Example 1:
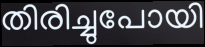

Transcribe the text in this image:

തിരിച്ചുപോയി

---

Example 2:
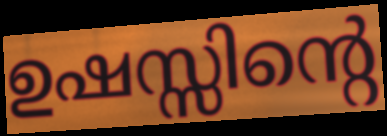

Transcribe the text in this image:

ഉഷസ്സിന്റെ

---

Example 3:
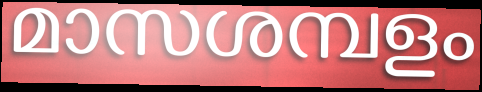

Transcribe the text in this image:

മാസശമ്പളം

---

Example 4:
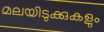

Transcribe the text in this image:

മലയിടുക്കുകളും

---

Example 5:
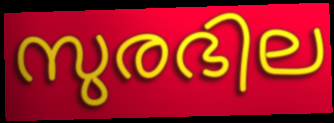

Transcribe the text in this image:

സുരഭില